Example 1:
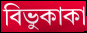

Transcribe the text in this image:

বিভুকাকা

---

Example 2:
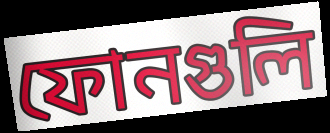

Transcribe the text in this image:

ফোনগুলি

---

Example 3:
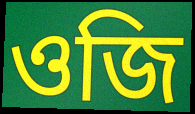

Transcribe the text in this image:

ওজি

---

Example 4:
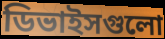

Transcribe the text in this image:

ডিভাইসগুলো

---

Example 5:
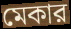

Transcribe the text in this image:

মেকার